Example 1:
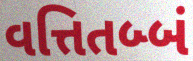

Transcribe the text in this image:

વત્તિતબ્બં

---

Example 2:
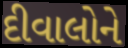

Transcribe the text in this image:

દીવાલોને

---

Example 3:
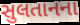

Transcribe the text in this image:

સુલતાનના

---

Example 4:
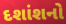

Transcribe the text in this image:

દશાંશનો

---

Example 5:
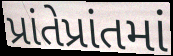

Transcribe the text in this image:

પ્રાંતેપ્રાંતમાં